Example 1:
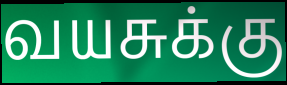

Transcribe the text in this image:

வயசுக்கு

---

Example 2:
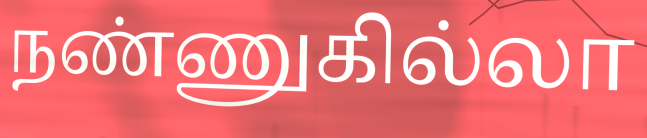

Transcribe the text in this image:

நண்ணுகில்லா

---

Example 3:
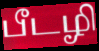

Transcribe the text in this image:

பீடழி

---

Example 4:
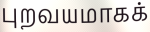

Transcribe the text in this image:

புறவயமாகக்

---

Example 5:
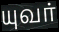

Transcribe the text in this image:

யுவர்